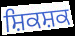
ਸ਼ਿਕਸ਼ਕ